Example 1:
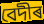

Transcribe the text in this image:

বেদীৰ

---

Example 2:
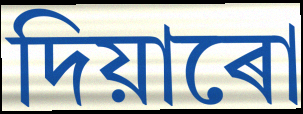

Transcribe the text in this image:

দিয়াৰো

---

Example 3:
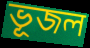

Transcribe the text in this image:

ভূজল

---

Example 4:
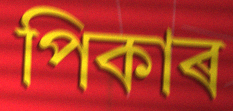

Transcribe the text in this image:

পিকাৰ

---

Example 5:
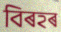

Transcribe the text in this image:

বিৰহৰ